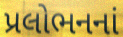
પ્રલોભનનાં